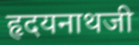
हृदयनाथजी